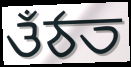
ওঁঠত